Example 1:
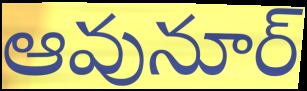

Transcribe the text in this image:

ఆవునూర్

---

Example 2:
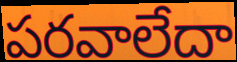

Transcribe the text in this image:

పరవాలేదా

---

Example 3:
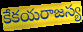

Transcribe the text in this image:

కేకయరాజస్య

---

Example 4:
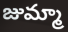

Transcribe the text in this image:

జుమ్మా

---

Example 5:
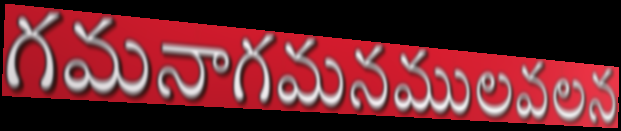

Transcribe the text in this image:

గమనాగమనములవలన